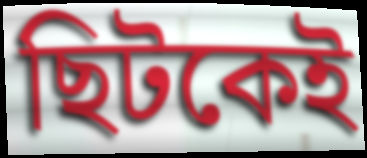
ছিটকেই